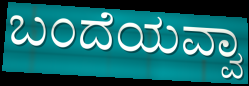
ಬಂದೆಯವ್ವಾ